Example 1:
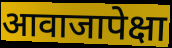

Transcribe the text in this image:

आवाजापेक्षा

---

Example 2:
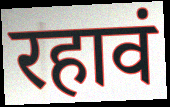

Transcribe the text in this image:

रहावं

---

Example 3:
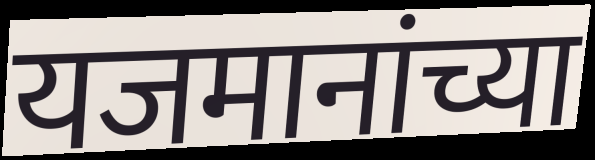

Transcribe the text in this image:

यजमानांच्या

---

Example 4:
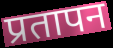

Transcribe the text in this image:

प्रतापन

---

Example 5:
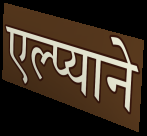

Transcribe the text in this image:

एल्प्याने